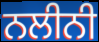
ਨਲੀਨੀ